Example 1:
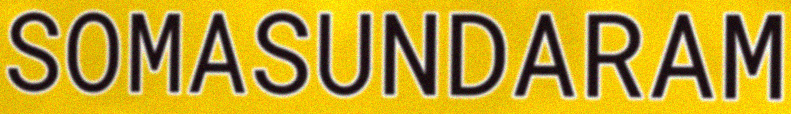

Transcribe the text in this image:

SOMASUNDARAM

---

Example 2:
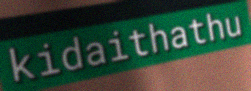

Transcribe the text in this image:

kidaithathu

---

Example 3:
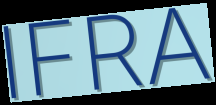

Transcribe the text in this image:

IFRA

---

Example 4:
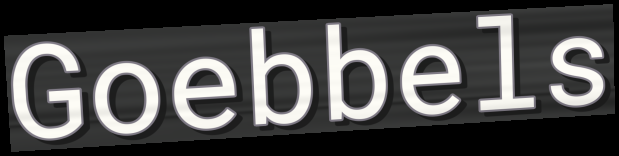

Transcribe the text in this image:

Goebbels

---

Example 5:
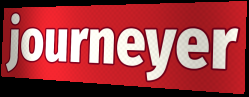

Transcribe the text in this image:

journeyer